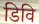
डिवि